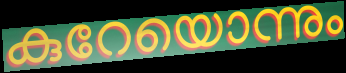
കുറേയൊന്നും